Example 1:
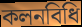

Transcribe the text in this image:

কলনবিধি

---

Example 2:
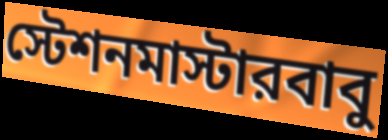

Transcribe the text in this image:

স্টেশনমাস্টারবাবু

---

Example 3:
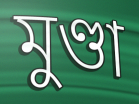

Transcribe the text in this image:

মুণ্ডা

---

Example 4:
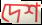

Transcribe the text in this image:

দেশ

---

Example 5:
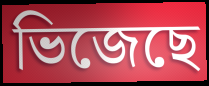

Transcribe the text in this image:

ভিজেছে